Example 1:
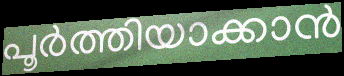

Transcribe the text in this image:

പൂർത്തിയാക്കാൻ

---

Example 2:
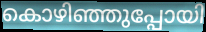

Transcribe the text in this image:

കൊഴിഞ്ഞുപ്പോയി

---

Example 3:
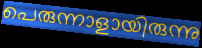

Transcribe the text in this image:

പെരുന്നാളായിരുന്നു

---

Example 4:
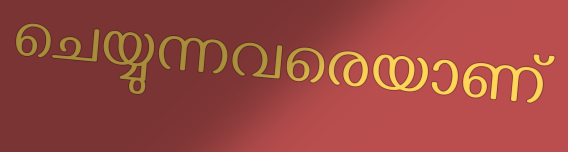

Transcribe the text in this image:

ചെയ്യുന്നവരെയാണ്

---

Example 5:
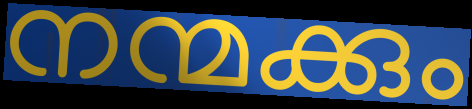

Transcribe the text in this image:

നന്മക്കും